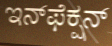
ಇನ್‌ಫೆಕ್ಷನ್